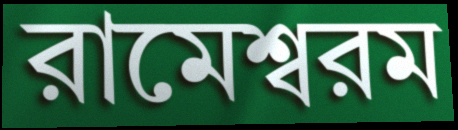
রামেশ্বরম